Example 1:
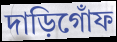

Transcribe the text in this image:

দাড়িগোঁফ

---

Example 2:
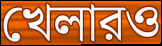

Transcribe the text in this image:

খেলারও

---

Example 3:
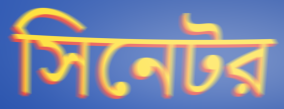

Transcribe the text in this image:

সিনেটর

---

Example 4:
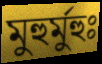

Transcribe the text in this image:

মুহুর্মুহুঃ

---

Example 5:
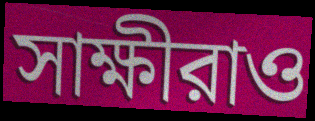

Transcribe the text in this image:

সাক্ষীরাও